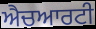
ਐਚਆਰਟੀ